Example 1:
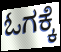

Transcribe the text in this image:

ಓಗಕ್ಕೆ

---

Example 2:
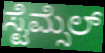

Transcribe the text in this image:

ಸ್ಟೆಮ್ಸೆಲ್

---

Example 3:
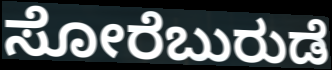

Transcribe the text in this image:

ಸೋರೆಬುರುಡೆ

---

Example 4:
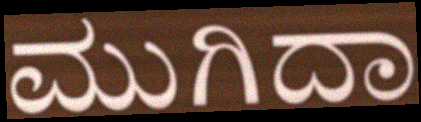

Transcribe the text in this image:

ಮುಗಿದಾ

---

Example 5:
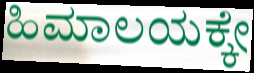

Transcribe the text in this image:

ಹಿಮಾಲಯಕ್ಕೇ